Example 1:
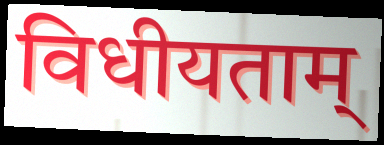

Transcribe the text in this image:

विधीयताम्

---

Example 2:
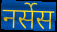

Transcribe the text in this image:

नर्सेस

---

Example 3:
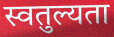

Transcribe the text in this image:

स्वतुल्यता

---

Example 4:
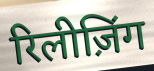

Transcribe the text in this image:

रिलीज़िंग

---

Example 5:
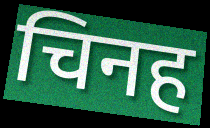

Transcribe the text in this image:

चिनह